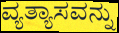
ವ್ಯತ್ಯಾಸವನ್ನು